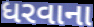
ધરવાના